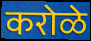
करोळे